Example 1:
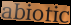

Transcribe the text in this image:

abiotic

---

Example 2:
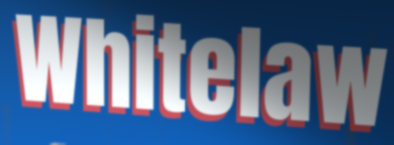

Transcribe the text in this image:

Whitelaw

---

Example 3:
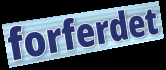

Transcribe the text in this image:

forferdet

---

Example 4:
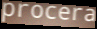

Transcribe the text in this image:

procera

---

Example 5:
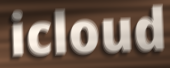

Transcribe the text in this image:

icloud